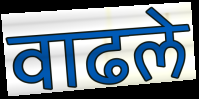
वाढले